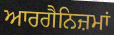
ਆਰਗੈਨਿਜ਼ਮਾਂ